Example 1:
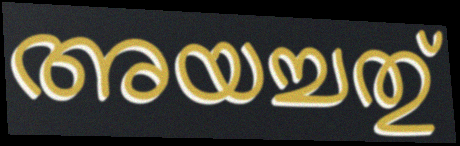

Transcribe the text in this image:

അയച്ചതു്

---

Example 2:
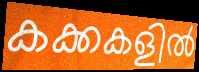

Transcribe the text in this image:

കക്കകളിൽ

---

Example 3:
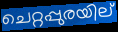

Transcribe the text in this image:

ചെറ്റപ്പുരയില്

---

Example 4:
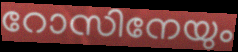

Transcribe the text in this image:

റോസിനേയും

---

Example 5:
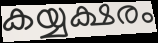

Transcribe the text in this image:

കയ്യക്ഷരം